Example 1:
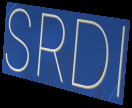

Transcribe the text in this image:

SRDI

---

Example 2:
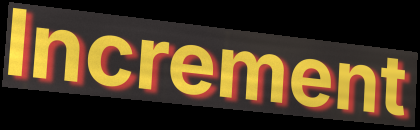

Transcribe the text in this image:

Increment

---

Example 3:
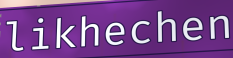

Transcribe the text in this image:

likhechen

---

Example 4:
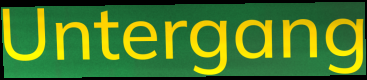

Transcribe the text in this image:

Untergang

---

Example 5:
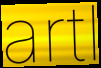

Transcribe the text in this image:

artl